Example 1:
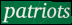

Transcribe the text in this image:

patriots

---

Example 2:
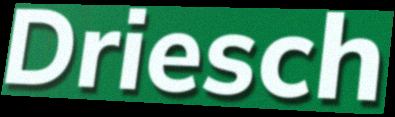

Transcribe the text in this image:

Driesch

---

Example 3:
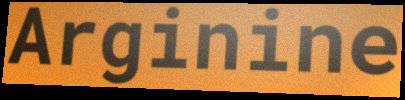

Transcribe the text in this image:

Arginine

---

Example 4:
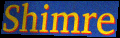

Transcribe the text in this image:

Shimre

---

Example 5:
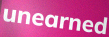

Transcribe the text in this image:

unearned